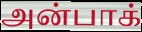
அன்பாக்